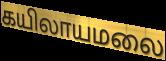
கயிலாயமலை